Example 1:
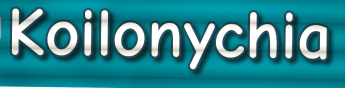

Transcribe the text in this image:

Koilonychia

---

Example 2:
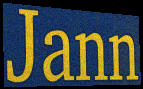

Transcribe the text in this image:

Jann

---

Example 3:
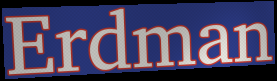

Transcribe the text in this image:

Erdman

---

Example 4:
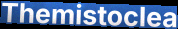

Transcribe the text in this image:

Themistoclea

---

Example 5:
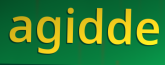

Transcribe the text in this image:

agidde